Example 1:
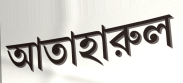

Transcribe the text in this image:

আতাহারুল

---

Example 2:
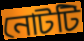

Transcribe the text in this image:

নোটটি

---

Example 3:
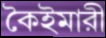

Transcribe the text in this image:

কৈইমারী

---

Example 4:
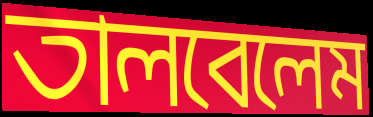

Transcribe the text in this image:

তালবেলেম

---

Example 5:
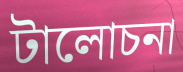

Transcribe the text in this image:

টালোচনা